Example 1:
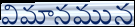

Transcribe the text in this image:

విమానమున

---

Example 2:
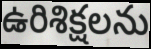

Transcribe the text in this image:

ఉరిశిక్షలను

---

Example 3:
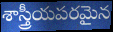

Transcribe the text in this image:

శాస్త్రీయపరమైన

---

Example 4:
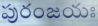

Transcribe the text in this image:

పురంజయః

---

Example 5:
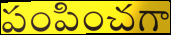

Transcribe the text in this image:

పంపించగా